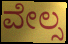
ವೇಲ್ಸ